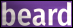
beard